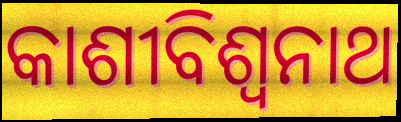
କାଶୀବିଶ୍ଵନାଥ